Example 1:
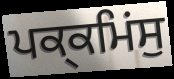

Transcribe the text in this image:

ਪਕ੍ਕਮਿਂਸੁ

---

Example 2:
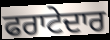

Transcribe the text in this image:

ਫਰਾਟੇਦਾਰ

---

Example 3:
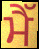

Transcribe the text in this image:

ਮੈੱ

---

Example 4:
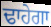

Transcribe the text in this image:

ਢਾਹੇਗਾ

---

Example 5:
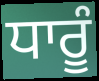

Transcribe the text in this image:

ਧਾਰੂੰ